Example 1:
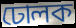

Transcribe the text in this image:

ঢোলক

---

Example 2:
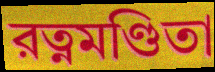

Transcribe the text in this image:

রত্নমণ্ডিতা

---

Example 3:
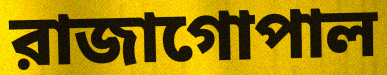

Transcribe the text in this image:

রাজাগোপাল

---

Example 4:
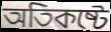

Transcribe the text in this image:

অতিকষ্টে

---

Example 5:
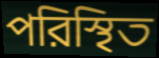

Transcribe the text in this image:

পরিস্থিত